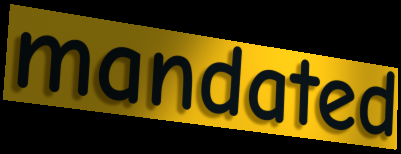
mandated